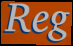
Reg